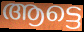
ആട്ടെ